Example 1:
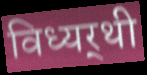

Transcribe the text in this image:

विध्यर्थी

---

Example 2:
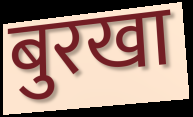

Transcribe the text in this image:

बुरखा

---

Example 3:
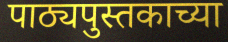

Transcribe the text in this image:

पाठ्यपुस्तकाच्या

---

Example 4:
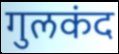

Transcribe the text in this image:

गुलकंद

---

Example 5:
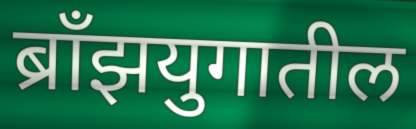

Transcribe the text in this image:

ब्राँझयुगातील